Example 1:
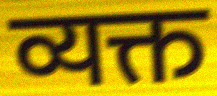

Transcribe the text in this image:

व्यक्त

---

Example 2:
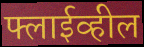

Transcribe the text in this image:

फ्लाईव्हील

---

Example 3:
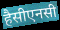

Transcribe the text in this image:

हैसीएनसी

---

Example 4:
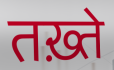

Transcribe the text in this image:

तख़्ते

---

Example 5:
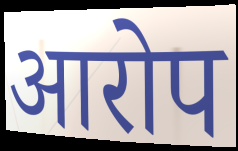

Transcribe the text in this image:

आरोप